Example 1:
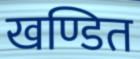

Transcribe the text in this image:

खण्डित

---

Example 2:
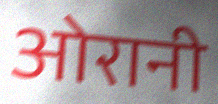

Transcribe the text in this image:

ओरानी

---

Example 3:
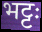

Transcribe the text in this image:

भट्टः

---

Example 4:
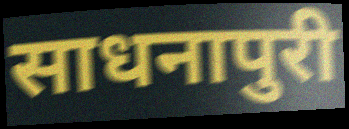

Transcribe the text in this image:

साधनापुरी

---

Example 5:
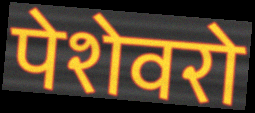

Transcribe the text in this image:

पेशेवरो